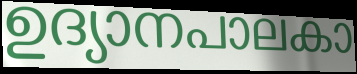
ഉദ്യാനപാലകാ